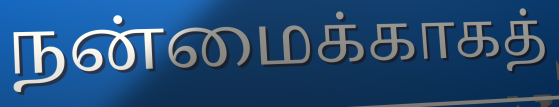
நன்மைக்காகத்